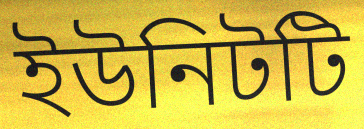
ইউনিটটি